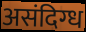
असंदिग्ध